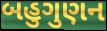
બહુગુણન